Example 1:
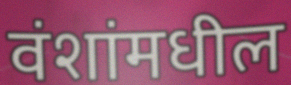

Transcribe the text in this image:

वंशांमधील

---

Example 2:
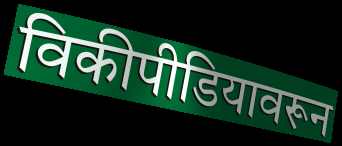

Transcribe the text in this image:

विकीपीडियावरून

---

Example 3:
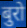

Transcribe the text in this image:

बुरो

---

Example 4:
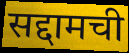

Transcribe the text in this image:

सद्दामची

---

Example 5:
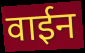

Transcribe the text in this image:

वाईन